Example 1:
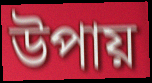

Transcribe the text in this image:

উপায়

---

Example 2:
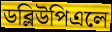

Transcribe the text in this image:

ডব্লিউপিএলে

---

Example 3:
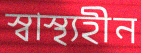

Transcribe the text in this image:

স্বাস্থ্যহীন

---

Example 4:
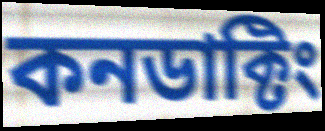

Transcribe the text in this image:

কনডাক্টিং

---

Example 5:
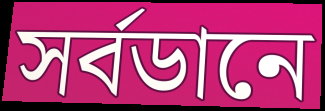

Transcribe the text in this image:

সর্বডানে